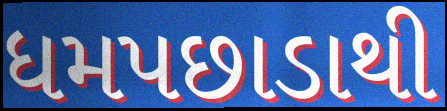
ધમપછાડાથી